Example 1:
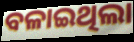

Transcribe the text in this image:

ବଳାଇଥିଲା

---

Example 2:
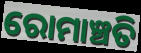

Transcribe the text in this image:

ରୋମାଞ୍ଚତି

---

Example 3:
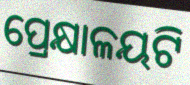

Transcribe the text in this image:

ପ୍ରେକ୍ଷାଳୟଟି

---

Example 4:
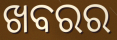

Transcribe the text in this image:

ଖବରର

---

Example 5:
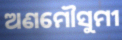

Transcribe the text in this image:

ଅଣମୌସୁମୀ